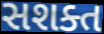
સશક્ત